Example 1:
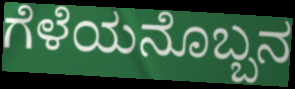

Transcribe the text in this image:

ಗೆಳೆಯನೊಬ್ಬನ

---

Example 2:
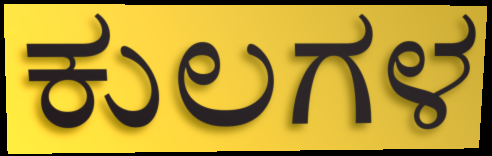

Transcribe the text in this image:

ಕುಲಗಳ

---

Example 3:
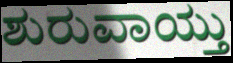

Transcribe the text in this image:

ಶುರುವಾಯ್ತು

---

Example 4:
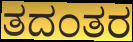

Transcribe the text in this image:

ತದಂತರ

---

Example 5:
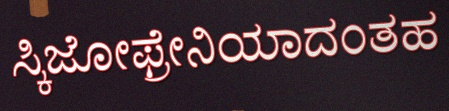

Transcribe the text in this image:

ಸ್ಕಿಜೋಫ್ರೇನಿಯಾದಂತಹ